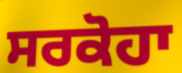
ਸਰਕੋਹਾ